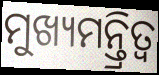
ମୁଖ୍ୟମନ୍ତ୍ରିତ୍ବ